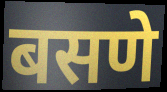
बसणे